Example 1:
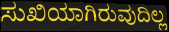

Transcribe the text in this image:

ಸುಖಿಯಾಗಿರುವುದಿಲ್ಲ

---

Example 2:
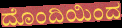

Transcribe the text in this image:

ದೊಂದಿಯಿಂದ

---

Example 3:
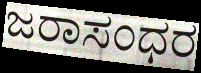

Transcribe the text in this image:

ಜರಾಸಂಧರ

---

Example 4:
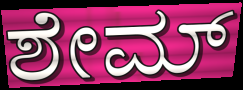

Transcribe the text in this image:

ಶೇಮ್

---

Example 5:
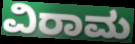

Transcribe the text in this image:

ವಿರಾಮ